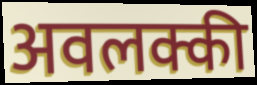
अवलक्की